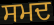
ਸਮਦ